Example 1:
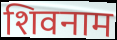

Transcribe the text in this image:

शिवनाम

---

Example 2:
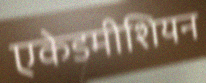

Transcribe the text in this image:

एकेडमीशियन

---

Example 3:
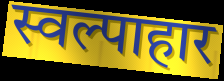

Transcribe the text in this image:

स्‍वल्‍पाहार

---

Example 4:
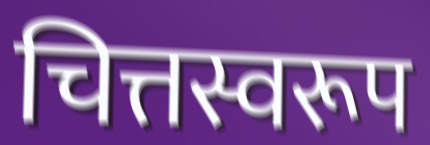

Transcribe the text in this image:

चित्तस्वरूप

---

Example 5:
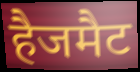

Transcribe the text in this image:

हैजमैट